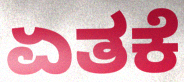
ಏತಕೆ